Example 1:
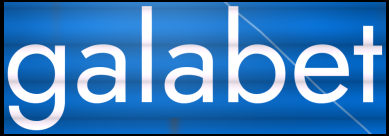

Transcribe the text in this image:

galabet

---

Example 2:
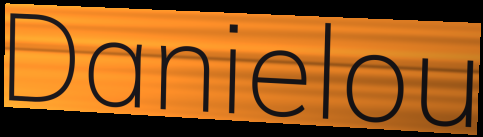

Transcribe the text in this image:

Danielou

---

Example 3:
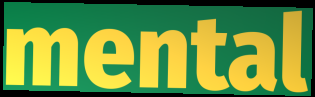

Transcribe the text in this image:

mental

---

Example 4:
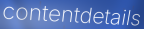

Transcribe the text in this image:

contentdetails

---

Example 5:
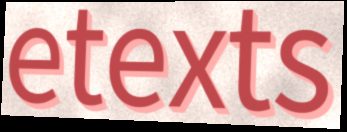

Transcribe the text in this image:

etexts